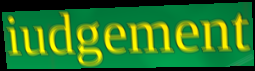
iudgement